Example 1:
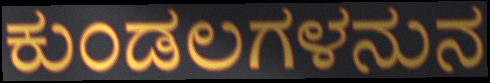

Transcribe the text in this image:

ಕುಂಡಲಗಳನುನ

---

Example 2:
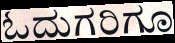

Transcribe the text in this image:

ಓದುಗರಿಗೂ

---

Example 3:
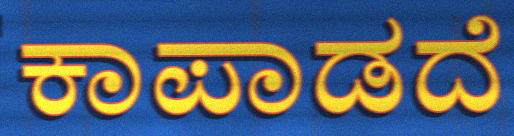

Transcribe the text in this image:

ಕಾಪಾಡದೆ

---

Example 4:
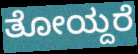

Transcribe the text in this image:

ತೋಯ್ದರೆ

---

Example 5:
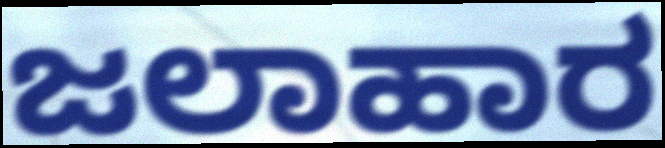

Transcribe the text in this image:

ಜಲಾಹಾರ